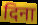
दिना